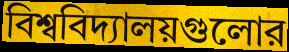
বিশ্ববিদ্যালয়গুলোর